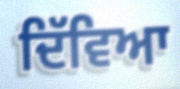
ਦਿੱਵਿਆ